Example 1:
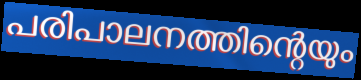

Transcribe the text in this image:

പരിപാലനത്തിന്റെയും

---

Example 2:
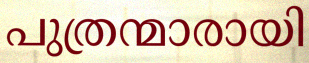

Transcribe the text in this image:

പുത്രന്മാരായി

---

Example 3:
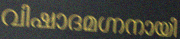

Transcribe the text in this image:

വിഷാദമഗ്നനായി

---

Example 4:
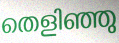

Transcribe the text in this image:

തെളിഞ്ഞു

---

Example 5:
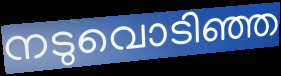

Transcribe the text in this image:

നടുവൊടിഞ്ഞ